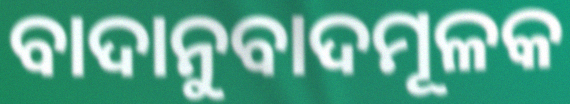
ବାଦାନୁବାଦମୂଳକ